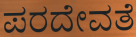
ಪರದೇವತೆ